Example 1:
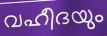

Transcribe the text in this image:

വഹീദയും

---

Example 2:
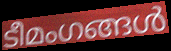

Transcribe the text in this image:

ടീമംഗങ്ങൾ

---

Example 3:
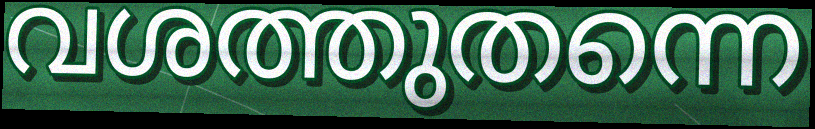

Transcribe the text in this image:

വശത്തുതന്നെ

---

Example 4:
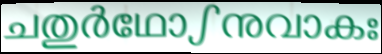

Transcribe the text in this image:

ചതുർഥോഽനുവാകഃ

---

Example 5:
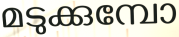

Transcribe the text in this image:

മടുക്കുമ്പോ